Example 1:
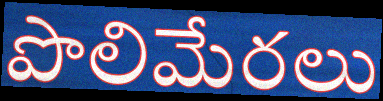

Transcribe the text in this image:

పొలిమేరలు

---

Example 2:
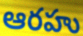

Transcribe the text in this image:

ఆరహు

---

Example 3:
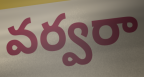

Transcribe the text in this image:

వర్వరా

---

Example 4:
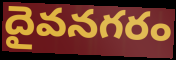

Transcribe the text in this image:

దైవనగరం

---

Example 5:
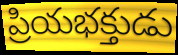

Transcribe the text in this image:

ప్రియభక్తుడు